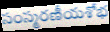
సంస్మరణీయశోభ